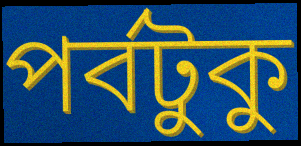
পর্বটুকু